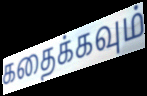
கதைக்கவும்